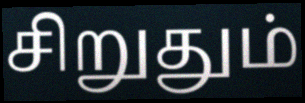
சிறுதும்